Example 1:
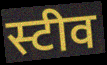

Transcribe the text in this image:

स्टीव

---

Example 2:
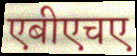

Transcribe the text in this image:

एबीएचए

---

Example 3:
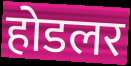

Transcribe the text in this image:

होडलर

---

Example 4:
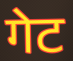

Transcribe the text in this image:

गेट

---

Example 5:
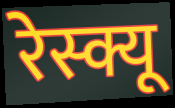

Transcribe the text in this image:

रेस्क्यू